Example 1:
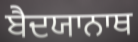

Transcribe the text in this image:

ਬੈਦਯਾਨਾਥ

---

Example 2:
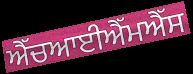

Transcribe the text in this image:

ਐੱਚਆਈਐੱਮਐੱਸ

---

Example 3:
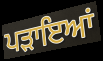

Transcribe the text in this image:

ਪੜਾਇਆਂ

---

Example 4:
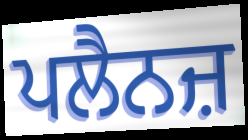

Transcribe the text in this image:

ਪਲੈਨਜ਼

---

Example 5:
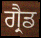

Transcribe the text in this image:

ਗ੍ਰੈਡ